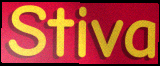
Stiva